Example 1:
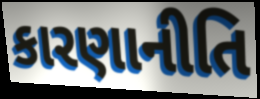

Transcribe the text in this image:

કારણાનીતિ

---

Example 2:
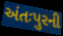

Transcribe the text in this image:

અંતઃપુરની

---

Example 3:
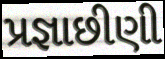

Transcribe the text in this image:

પ્રજ્ઞાછીણી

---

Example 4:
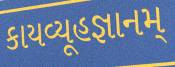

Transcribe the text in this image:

કાયવ્યૂહજ્ઞાનમ્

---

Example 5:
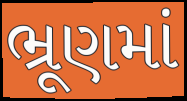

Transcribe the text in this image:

ભ્રૂણમાં